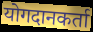
योगदानकर्ता